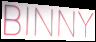
BINNY